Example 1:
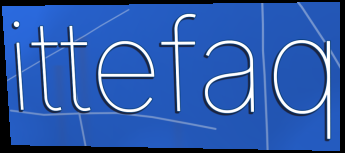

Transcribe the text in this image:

ittefaq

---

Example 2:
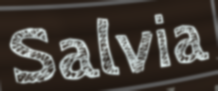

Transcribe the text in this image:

Salvia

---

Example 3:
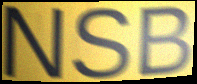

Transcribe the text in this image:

NSB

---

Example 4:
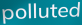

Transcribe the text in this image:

polluted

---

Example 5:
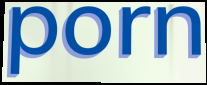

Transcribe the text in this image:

porn